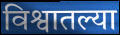
विश्वातल्या